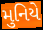
મુનિયે